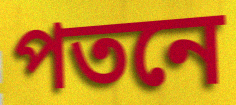
পতনে